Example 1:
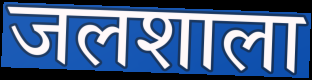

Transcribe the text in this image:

जलशाला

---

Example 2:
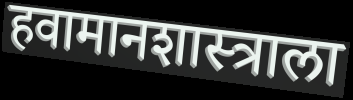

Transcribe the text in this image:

हवामानशास्त्राला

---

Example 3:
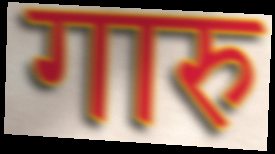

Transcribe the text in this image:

गारु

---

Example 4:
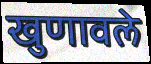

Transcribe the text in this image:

खुणावले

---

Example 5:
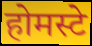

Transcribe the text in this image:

होमस्टे